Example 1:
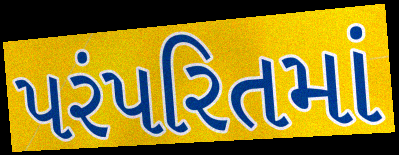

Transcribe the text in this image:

પરંપરિતમાં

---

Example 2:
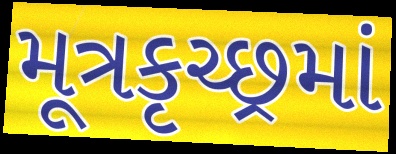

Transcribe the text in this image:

મૂત્રકૃચ્છ્રમાં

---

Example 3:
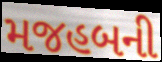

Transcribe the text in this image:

મજહબની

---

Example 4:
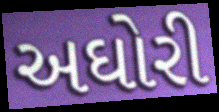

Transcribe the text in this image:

અઘોરી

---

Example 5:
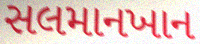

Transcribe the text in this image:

સલમાનખાન